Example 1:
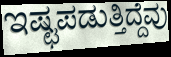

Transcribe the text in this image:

ಇಷ್ಟಪಡುತ್ತಿದ್ದೆವು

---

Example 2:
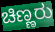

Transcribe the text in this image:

ಚಿಣ್ಣರು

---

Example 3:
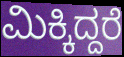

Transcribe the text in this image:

ಮಿಕ್ಕಿದ್ದರೆ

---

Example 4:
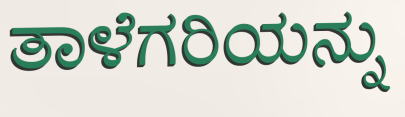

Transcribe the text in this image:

ತಾಳೆಗರಿಯನ್ನು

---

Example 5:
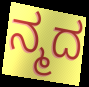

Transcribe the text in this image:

ನ್ಮದ